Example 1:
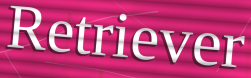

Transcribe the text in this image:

Retriever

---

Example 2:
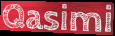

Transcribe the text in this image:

Qasimi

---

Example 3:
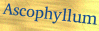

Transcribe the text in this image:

Ascophyllum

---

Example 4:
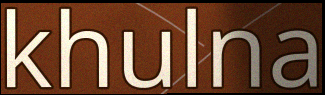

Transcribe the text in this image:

khulna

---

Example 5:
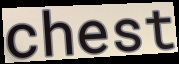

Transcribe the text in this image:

chest